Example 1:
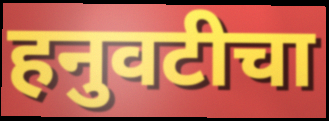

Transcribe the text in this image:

हनुवटीचा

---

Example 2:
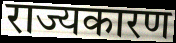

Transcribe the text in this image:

राज्यकारण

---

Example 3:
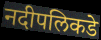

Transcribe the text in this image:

नदीपलिकडे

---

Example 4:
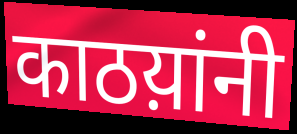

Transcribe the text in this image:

काठय़ांनी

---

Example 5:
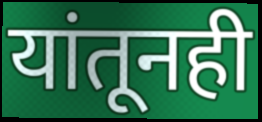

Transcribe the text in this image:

यांतूनही